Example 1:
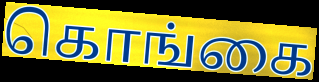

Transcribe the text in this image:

கொங்கை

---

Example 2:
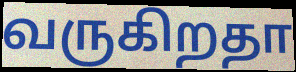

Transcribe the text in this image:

வருகிறதா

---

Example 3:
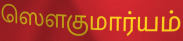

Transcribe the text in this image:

ஸௌகுமார்யம்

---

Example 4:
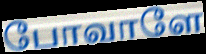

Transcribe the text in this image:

போவாளே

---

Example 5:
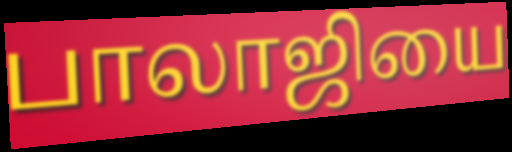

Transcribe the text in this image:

பாலாஜியை